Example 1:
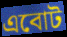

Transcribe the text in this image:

এবোট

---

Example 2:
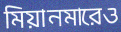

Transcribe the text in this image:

মিয়ানমারেও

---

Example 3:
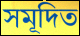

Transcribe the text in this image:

সমূদিত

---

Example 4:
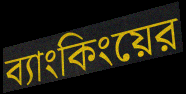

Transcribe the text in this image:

ব্যাংকিংয়ের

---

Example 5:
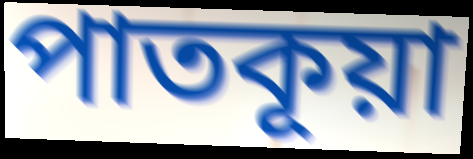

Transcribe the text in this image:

পাতকূয়া